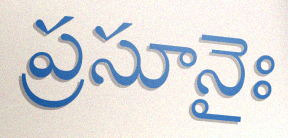
ప్రసూనైః